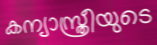
കന്യാസ്ത്രീയുടെ